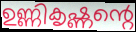
ഉണ്ണികൃഷ്ണന്റെ